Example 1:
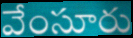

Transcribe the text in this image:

వేంసూరు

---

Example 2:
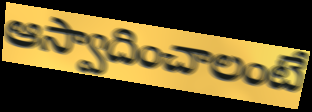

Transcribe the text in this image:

ఆస్వాదించాలంటే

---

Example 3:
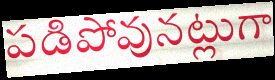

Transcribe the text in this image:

పడిపోవునట్లుగా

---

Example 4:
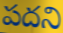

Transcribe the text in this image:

పదని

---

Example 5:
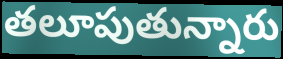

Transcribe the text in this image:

తలూపుతున్నారు